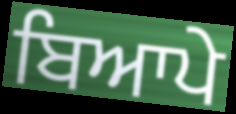
ਬਿਆਪੇ